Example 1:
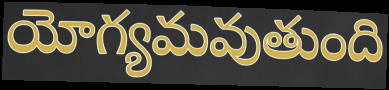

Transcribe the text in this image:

యోగ్యమవుతుంది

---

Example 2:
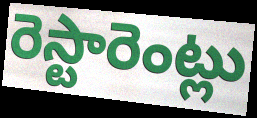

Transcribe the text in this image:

రెస్టారెంట్లు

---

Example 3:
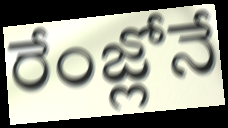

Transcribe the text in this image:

రేంజ్లోనే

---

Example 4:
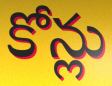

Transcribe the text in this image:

కోన్లు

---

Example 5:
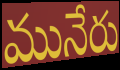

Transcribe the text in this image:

మునేరు